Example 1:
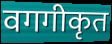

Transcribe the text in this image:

वगगीकृत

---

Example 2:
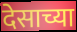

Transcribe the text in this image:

देसाच्या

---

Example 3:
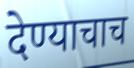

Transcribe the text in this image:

देण्याचाच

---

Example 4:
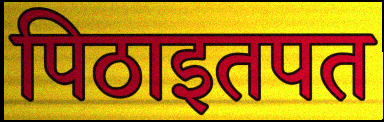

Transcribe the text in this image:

पिठाइतपत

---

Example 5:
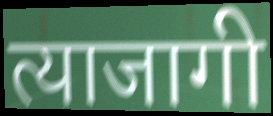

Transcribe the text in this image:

त्याजागी